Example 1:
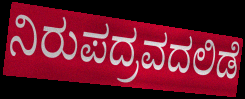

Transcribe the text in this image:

ನಿರುಪದ್ರವದಲಿಡೆ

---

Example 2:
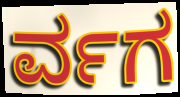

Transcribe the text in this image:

ರ್ವಗ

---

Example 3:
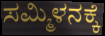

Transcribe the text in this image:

ಸಮ್ಮಿಳನಕ್ಕೆ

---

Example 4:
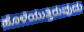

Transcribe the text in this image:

ಹೊಳೆಯುತ್ತಿರುವುದು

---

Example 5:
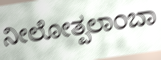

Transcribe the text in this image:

ನೀಲೋತ್ಪಲಾಂಬಾ